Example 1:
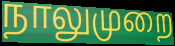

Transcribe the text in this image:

நாலுமுறை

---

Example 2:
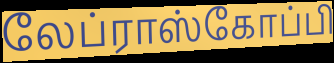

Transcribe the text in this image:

லேப்ராஸ்கோப்பி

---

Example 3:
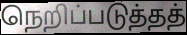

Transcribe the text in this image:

நெறிப்படுத்தத்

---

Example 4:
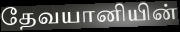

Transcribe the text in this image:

தேவயானியின்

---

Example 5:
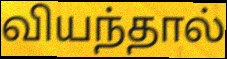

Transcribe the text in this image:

வியந்தால்